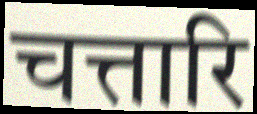
चत्तारि